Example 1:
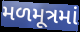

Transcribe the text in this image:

મળમૂત્રમાં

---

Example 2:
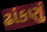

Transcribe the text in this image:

ઢાંકણું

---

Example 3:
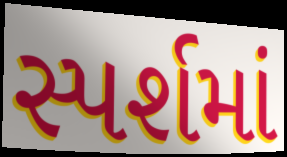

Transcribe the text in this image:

સ્પર્શમાં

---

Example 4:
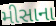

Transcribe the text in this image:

મીસાના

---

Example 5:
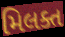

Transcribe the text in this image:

મિલક્ત